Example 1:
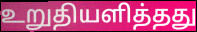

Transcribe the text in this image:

உறுதியளித்தது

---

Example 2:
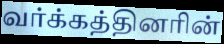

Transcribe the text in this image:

வர்க்கத்தினரின்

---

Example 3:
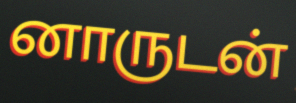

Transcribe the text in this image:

னாருடன்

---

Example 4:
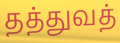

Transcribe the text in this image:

தத்துவத்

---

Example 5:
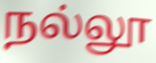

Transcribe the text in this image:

நல்லூ